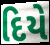
દિયે